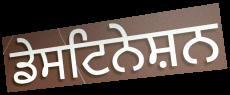
ਡੇਸਟਿਨੇਸ਼ਨ